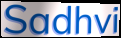
Sadhvi